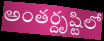
అంతర్దృష్టిలో